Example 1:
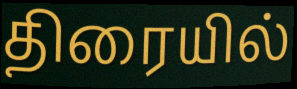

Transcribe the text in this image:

திரையில்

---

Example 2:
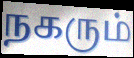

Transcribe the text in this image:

நகரும்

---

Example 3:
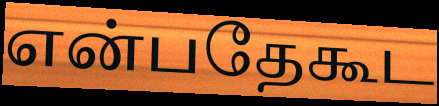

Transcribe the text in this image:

என்பதேகூட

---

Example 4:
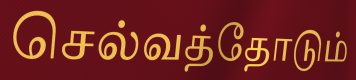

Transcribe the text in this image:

செல்வத்தோடும்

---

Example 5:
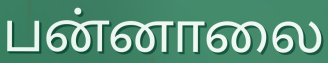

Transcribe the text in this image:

பன்னாலை